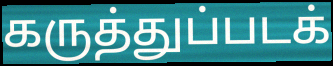
கருத்துப்படக்